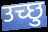
उच्छु